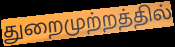
துறைமுற்றத்தில்